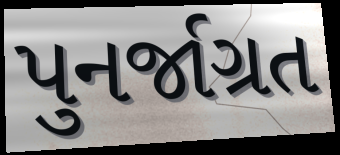
પુનર્જાગ્રત